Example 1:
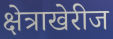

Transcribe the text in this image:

क्षेत्राखेरीज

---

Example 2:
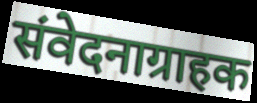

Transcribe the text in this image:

संवेदनाग्राहक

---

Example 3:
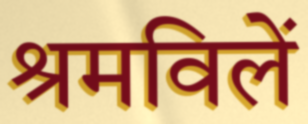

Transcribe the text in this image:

श्रमविलें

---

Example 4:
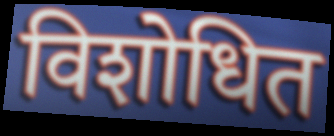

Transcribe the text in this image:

विशोधित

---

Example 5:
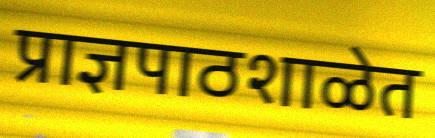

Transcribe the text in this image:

प्राज्ञपाठशाळेत